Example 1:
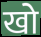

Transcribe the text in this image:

खो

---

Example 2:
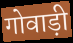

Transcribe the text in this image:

गोवाड़ी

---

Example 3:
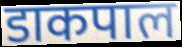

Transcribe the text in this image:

डाकपाल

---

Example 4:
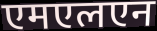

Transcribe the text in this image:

एमएलएन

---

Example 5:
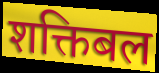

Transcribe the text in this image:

शक्तिबल